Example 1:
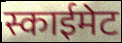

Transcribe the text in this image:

स्काईमेट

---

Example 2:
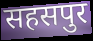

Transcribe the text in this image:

सहसपुर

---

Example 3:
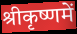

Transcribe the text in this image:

श्रीकृष्णमें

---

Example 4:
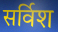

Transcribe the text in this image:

सर्विश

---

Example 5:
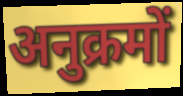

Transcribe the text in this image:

अनुक्रमों